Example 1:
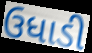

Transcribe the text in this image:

ઉધાડી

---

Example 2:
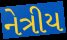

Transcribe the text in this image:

નેત્રીય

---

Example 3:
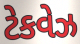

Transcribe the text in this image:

ટેકવેઝ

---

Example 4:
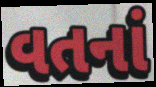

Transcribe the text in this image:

વતનાં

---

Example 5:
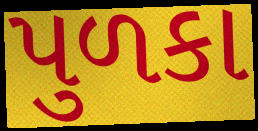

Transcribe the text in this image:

પુળકા